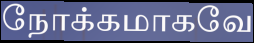
நோக்கமாகவே